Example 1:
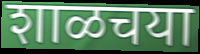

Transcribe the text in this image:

शाळचया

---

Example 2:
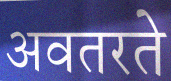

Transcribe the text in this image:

अवतरते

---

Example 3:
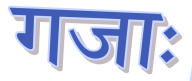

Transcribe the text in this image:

गजाः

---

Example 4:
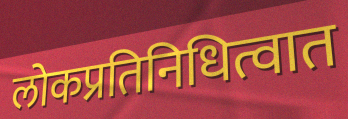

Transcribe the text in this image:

लोकप्रतिनिधित्वात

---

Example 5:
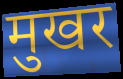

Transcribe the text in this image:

मुखर